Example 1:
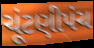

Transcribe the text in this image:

ચૂંટણીપંચ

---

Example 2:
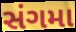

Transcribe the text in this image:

સંગમા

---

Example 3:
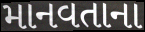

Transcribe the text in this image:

માનવતાના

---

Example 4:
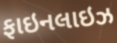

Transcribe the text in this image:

ફાઇનલાઇઝ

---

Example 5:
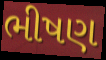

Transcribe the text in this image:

ભીષણ